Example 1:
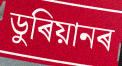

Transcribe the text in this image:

ডুৰিয়ানৰ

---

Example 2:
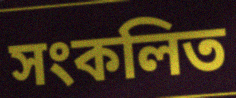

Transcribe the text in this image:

সংকলিত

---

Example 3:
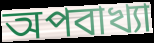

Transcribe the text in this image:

অপবাখ্যা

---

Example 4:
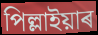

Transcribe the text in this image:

পিল্লাইয়াৰ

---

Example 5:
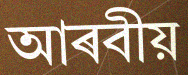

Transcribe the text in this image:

আৰবীয়